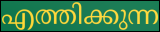
എത്തിക്കുന്ന